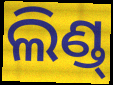
ଲିଣ୍ଡ୍